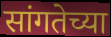
सांगतेच्या